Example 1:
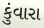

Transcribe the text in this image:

કુંવારા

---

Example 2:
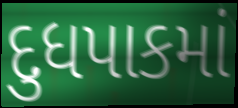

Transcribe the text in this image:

દુધપાકમાં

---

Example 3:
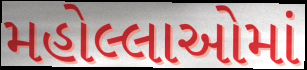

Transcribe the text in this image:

મહોલ્લાઓમાં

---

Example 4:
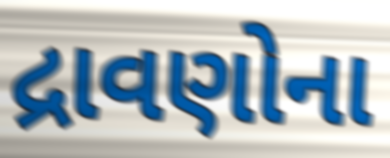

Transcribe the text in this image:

દ્રાવણોના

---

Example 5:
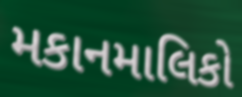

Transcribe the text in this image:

મકાનમાલિકો